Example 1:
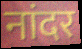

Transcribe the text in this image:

नांदर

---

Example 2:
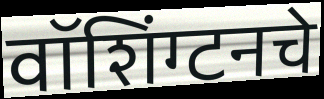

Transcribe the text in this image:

वॉशिंग्टनचे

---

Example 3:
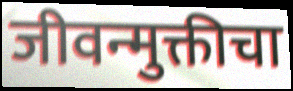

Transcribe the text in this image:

जीवन्मुक्तीचा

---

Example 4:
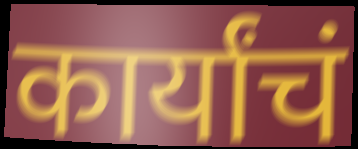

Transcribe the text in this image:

कार्यांचं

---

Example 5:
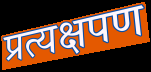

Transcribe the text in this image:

प्रत्यक्षपण